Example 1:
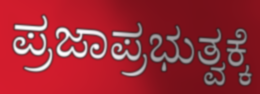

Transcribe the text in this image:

ಪ್ರಜಾಪ್ರಭುತ್ವಕ್ಕೆ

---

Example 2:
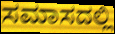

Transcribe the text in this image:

ಸಮಾಸದಲ್ಲಿ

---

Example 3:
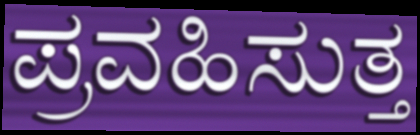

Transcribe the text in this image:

ಪ್ರವಹಿಸುತ್ತ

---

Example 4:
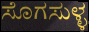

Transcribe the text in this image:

ಸೊಗಸುಳ್ಳ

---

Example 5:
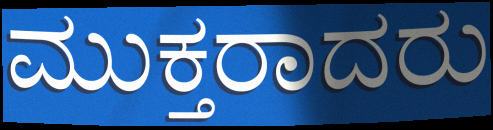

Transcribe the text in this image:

ಮುಕ್ತರಾದರು